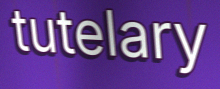
tutelary